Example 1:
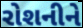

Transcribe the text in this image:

રોશનીને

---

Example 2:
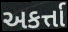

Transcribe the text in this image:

અકર્ત્તા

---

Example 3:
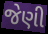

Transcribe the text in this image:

જેણી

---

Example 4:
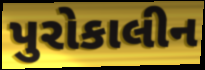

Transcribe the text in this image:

પુરોકાલીન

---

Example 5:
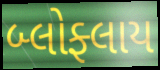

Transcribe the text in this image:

બ્લોફ્લાય